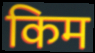
किम